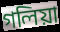
গলিয়া